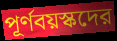
পূর্ণবয়স্কদের